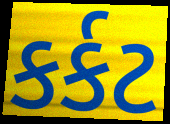
કર્કટ